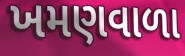
ખમણવાળા